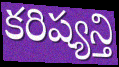
కరిష్యన్తి